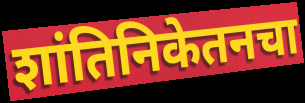
शांतिनिकेतनचा